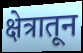
क्षेत्रातून